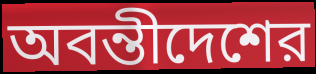
অবন্তীদেশের